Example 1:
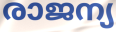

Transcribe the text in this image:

രാജന്യ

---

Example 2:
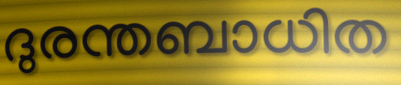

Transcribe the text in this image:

ദുരന്തബാധിത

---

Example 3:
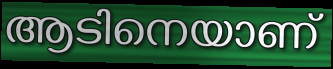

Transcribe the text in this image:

ആടിനെയാണ്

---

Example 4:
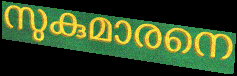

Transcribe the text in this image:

സുകുമാരനെ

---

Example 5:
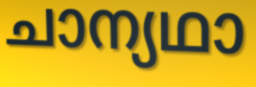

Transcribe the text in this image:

ചാന്യഥാ